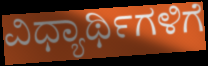
ವಿಧ್ಯಾರ್ಥಿಗಳಿಗೆ